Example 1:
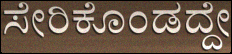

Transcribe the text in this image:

ಸೇರಿಕೊಂಡದ್ದೇ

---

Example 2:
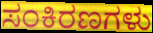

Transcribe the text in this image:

ಸಂಕಿರಣಗಳು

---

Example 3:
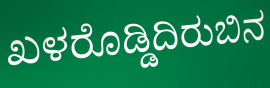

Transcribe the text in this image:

ಖಳರೊಡ್ಡಿದಿರುಬಿನ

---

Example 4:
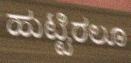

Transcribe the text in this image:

ಹುಟ್ಟಿರಲೂ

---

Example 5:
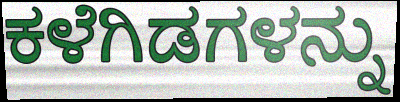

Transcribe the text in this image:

ಕಳೆಗಿಡಗಳನ್ನು